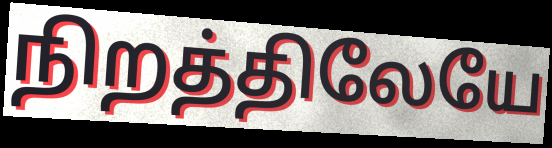
நிறத்திலேயே